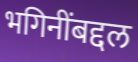
भगिनींबद्दल